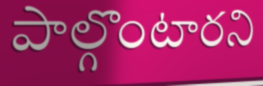
పాల్గొంటారని